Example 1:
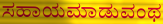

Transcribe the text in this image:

ಸಹಾಯಮಾಡುವಂಥ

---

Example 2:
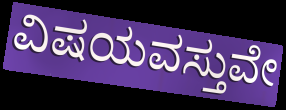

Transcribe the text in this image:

ವಿಷಯವಸ್ತುವೇ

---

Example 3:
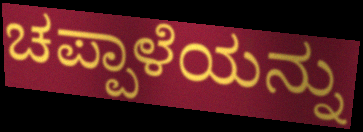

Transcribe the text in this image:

ಚಪ್ಪಾಳೆಯನ್ನು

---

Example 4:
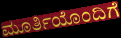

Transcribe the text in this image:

ಮೂರ್ತಿಯೊಂದಿಗೆ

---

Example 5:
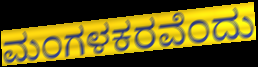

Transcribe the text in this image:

ಮಂಗಳಕರವೆಂದು